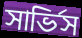
সার্ভিস